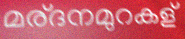
മര്ദനമുറകള്